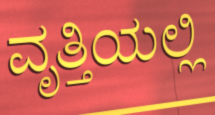
ವೃತ್ತಿಯಲ್ಲಿ